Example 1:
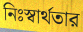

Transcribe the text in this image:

নিঃস্বার্থতার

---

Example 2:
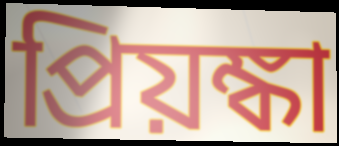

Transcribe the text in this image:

প্রিয়ঙ্কা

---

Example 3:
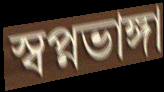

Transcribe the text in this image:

স্বপ্নভাঙ্গা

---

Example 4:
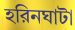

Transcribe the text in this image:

হরিনঘাটা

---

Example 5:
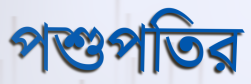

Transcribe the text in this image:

পশুপতির